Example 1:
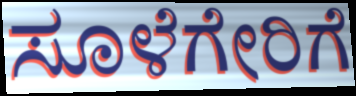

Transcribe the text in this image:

ಸೂಳೆಗೇರಿಗೆ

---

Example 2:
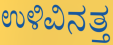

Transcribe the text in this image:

ಉಳಿವಿನತ್ತ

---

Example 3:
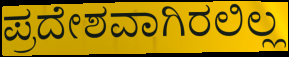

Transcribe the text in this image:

ಪ್ರದೇಶವಾಗಿರಲಿಲ್ಲ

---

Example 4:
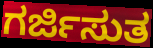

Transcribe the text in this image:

ಗರ್ಜಿಸುತ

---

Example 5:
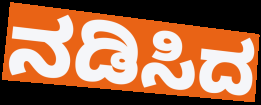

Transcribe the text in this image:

ನಡಿಸಿದ